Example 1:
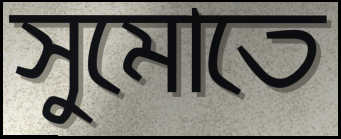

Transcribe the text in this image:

সুমোতে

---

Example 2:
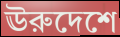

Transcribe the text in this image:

ঊরুদেশে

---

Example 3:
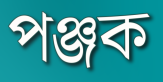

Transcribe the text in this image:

পঞ্জক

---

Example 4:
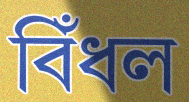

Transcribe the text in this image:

বিঁধল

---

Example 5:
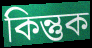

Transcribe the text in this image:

কিন্তুক